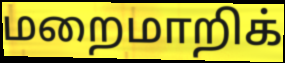
மறைமாறிக்